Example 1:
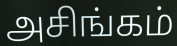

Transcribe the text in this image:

அசிங்கம்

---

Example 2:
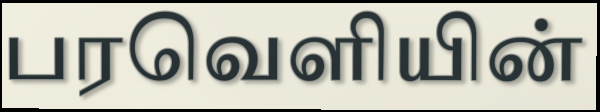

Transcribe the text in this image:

பரவெளியின்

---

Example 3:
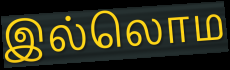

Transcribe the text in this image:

இல்லொம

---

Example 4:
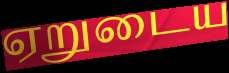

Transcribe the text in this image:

ஏறுடைய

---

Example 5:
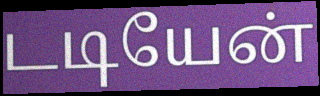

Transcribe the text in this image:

டடியேன்